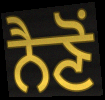
ਨੈਣੋਂ